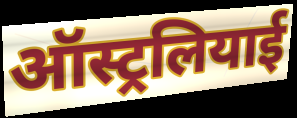
ऑस्ट्रलियाई